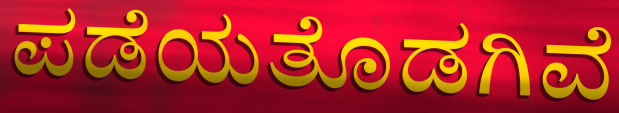
ಪಡೆಯತೊಡಗಿವೆ